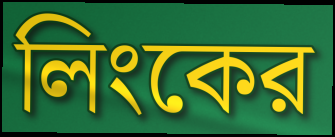
লিংকের